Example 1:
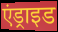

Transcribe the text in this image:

एंड्राइड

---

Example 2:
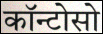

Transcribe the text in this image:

कॉन्टोसो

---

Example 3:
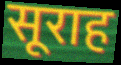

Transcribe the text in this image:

सूराह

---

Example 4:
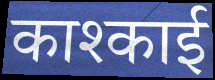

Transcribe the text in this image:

काश्काई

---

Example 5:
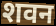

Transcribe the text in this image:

शवन